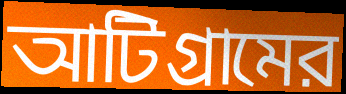
আটিগ্রামের